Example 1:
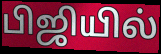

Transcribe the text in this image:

பிஜியில்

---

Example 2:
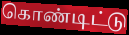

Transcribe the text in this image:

கொண்டிட்டு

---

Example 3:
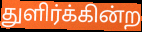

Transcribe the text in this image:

துளிர்க்கின்ற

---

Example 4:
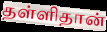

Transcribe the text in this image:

தள்ளிதான்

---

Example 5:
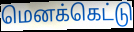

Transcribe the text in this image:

மெனக்கெட்டு